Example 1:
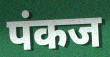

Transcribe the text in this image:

पंकज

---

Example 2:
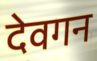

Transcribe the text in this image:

देवगन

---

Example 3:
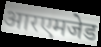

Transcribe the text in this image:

आरएमजेड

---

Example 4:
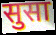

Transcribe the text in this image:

सुसा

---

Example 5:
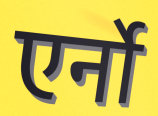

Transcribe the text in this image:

एर्नो